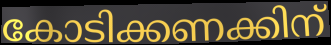
കോടിക്കണക്കിന്